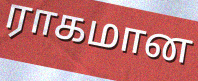
ராகமான